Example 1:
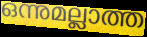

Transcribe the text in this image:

ഒന്നുമല്ലാത്ത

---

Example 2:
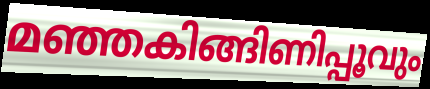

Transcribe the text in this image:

മഞ്ഞകിങ്ങിണിപ്പൂവും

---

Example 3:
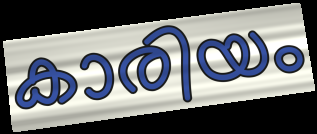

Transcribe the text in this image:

കാരിയം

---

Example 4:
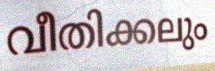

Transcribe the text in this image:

വീതിക്കലും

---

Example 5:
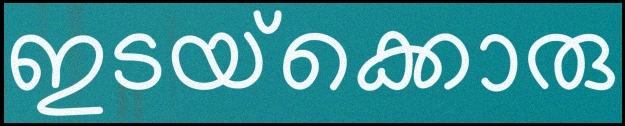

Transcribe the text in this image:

ഇടയ്‌ക്കൊരു